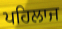
ਪਹਿਲਾਜ